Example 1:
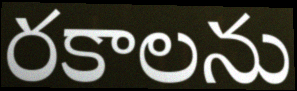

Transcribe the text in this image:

రకాలను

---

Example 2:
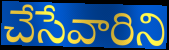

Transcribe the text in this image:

చేసేవారిని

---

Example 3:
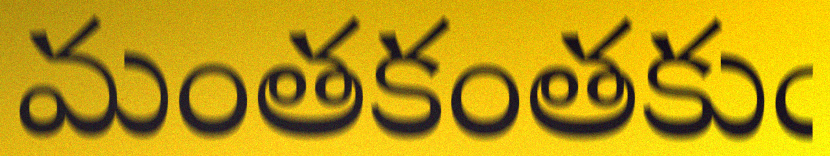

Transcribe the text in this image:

మంతకంతకుఁ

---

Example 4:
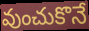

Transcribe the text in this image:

వుంచుకొనే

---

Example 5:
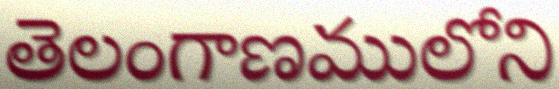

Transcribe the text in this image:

తెలంగాణములోని